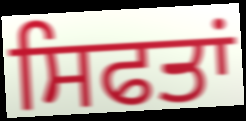
ਸਿਫਤਾਂ